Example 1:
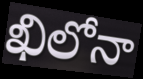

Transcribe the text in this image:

ఖిలోనా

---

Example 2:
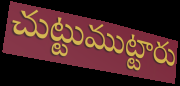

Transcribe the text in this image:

చుట్టుముట్టారు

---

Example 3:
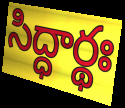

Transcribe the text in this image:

సిద్ధార్థః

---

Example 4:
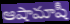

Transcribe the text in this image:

ఆషామాషీ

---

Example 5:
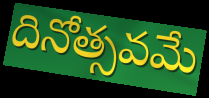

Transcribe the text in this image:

దినోత్సవమే